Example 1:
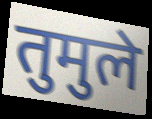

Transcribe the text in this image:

तुमुले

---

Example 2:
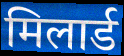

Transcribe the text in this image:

मिलार्ड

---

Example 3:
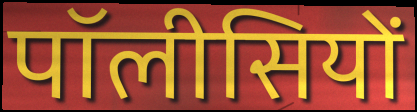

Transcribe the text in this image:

पॉलीसियों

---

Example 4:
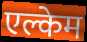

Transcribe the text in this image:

एल्केम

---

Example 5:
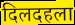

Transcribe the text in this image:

दिलदहला